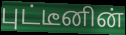
புட்டீனின்